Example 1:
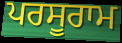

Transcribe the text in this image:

ਪਰਸੂਰਾਮ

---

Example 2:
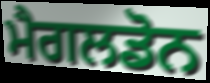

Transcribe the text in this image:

ਮੈਗਲਡੋਨ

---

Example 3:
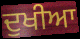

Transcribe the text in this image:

ਦੁਖੀਆ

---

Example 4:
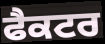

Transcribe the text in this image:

ਫੈਕਟਰ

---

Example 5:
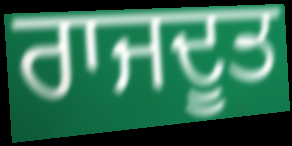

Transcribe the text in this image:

ਰਾਜਦੂਤ